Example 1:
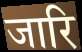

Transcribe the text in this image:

जारि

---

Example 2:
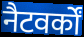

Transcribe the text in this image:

नैटवर्कों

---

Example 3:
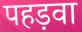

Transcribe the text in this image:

पहड़वा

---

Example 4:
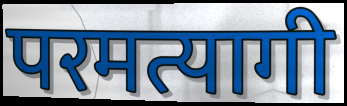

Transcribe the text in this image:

परमत्यागी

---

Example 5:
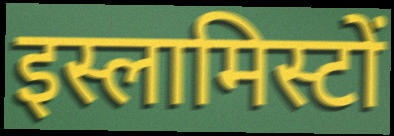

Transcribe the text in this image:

इस्लामिस्टों